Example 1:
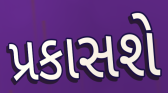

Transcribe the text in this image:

પ્રકાસશે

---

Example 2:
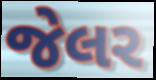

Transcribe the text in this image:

જેલર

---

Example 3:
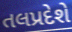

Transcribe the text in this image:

તલપ્રદેશે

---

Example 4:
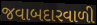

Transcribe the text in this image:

જવાબદારવાળી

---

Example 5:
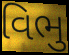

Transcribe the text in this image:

વિભુ